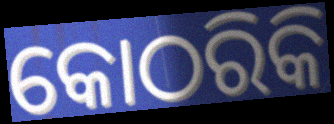
କୋଠରିକି